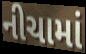
નીચામાં